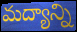
మద్యాన్ని